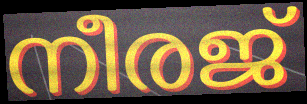
നീരജ്